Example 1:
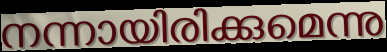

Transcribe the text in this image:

നന്നായിരിക്കുമെന്നു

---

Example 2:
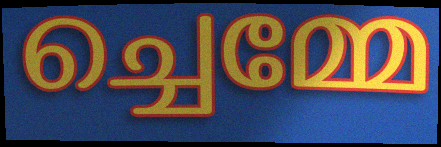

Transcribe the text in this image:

ച്ചെമ്മേ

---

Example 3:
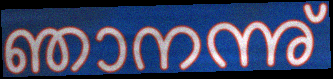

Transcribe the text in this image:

ഞാനന്നു്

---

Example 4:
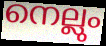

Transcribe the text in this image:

നെല്ലും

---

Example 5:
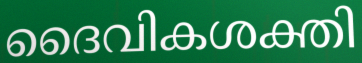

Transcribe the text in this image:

ദൈവികശക്തി